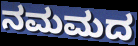
ನಮಮದ